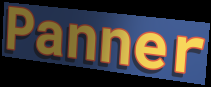
Panner